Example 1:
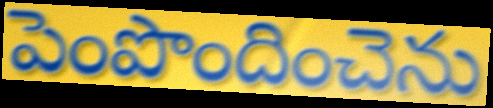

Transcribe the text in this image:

పెంపొందించెను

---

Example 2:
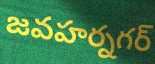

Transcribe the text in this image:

జవహర్నగర్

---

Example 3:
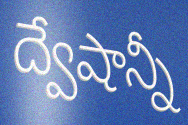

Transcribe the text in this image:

ద్వేషాన్నీ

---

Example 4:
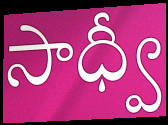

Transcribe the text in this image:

సాధ్వీ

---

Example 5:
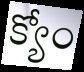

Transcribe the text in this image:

క్యోం